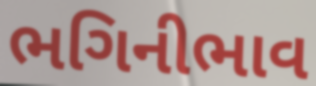
ભગિનીભાવ